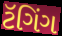
ટૅગિંગ